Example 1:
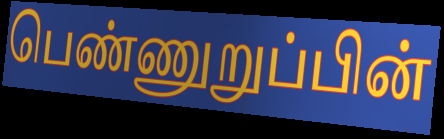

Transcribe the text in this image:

பெண்ணுறுப்பின்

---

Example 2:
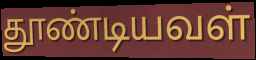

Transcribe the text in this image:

தூண்டியவள்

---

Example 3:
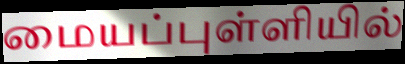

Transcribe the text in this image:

மையப்புள்ளியில்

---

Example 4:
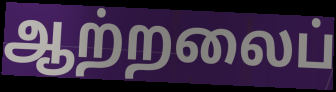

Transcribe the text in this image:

ஆற்றலைப்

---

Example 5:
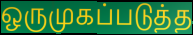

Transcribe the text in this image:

ஒருமுகப்படுத்த